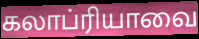
கலாப்ரியாவை